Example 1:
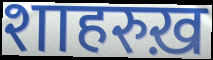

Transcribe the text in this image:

शाहरुख़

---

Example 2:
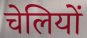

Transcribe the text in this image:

चेलियों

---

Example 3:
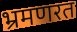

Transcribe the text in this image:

भ्रमणरत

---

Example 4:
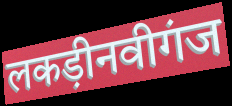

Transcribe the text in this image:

लकड़ीनवीगंज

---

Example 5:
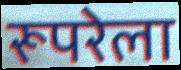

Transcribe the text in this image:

रूपरेला